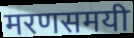
मरणसमयी